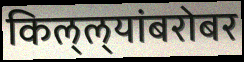
किल्ल्यांबरोबर